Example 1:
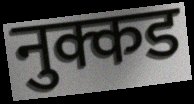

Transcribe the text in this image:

नुक्कड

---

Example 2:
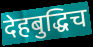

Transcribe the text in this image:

देहबुद्धिच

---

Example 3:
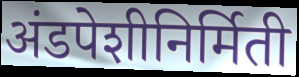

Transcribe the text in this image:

अंडपेशीनिर्मिती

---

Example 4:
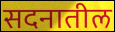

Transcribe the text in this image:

सदनातील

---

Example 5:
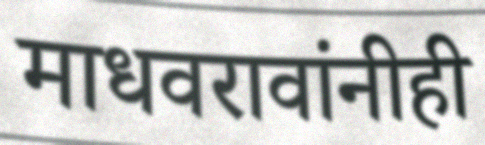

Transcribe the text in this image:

माधवरावांनीही